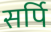
सर्पि